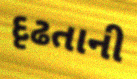
દૃઢતાની